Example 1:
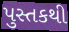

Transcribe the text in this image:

પુસ્તકથી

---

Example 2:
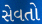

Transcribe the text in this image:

સેવતો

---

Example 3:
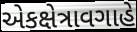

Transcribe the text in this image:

એકક્ષેત્રાવગાહે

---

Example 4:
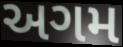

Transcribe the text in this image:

અગમ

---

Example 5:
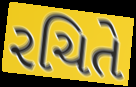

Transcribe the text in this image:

રચિતે